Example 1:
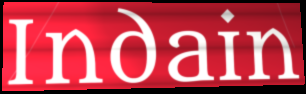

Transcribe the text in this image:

Indain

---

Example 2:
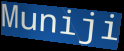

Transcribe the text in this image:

Muniji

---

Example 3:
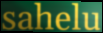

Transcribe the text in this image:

sahelu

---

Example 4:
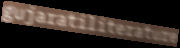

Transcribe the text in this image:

gujaratiliterature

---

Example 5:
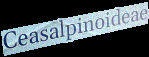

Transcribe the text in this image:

Ceasalpinoideae